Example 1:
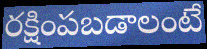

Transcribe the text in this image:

రక్షింపబడాలంటే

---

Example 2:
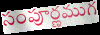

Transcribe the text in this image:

సంపూర్ణముగ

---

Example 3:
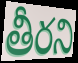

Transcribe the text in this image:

తీరని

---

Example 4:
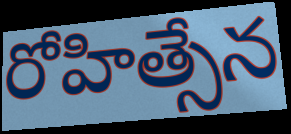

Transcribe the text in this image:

రోహిత్సేన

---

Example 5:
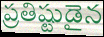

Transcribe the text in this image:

ప్రతిష్టుడైన